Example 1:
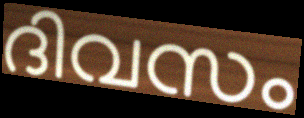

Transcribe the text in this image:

ദിവസം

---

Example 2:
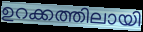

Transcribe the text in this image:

ഉറക്കത്തിലായി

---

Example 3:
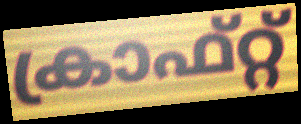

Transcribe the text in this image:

ക്രാഫ്റ്റ്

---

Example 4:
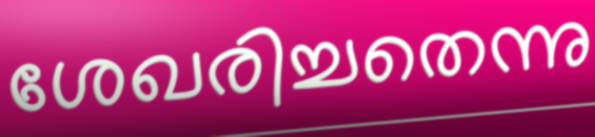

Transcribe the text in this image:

ശേഖരിച്ചതെന്നു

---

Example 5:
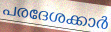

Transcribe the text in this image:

പരദേശക്കാർ